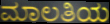
ಮಾಲತಿಯ